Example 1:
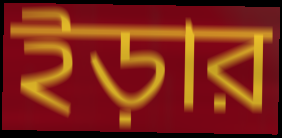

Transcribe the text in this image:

ইড়ার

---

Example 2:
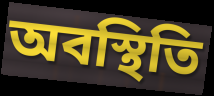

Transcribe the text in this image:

অবস্থিতি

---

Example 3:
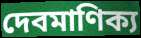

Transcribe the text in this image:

দেবমাণিক্য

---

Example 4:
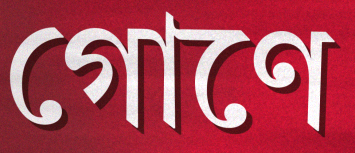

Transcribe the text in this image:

গোণে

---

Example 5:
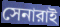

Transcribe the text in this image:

সেনারাই